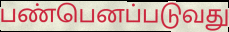
பண்பெனப்படுவது